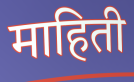
माहिती